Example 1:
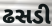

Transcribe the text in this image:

ઢસડી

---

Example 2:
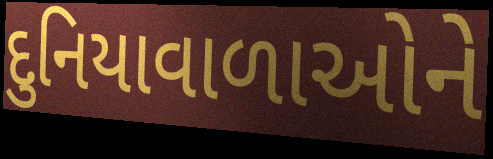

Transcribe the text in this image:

દુનિયાવાળાઓને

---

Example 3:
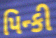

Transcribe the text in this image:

પિન્કી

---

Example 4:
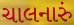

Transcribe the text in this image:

ચાલનારું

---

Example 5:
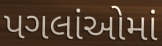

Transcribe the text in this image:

પગલાંઓમાં